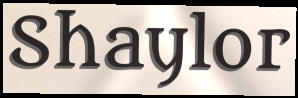
Shaylor